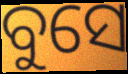
ବୁସେ